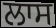
ਲਾਸ